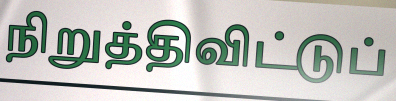
நிறுத்திவிட்டுப்